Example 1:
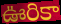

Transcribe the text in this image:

ఊరికా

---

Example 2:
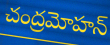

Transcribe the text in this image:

చంద్రమోహన్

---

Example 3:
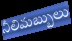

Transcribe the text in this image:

నీలిమబ్బులు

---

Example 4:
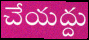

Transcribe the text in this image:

చేయద్దు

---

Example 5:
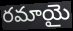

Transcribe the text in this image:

రమాయై